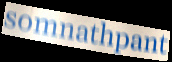
somnathpant